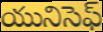
యునిసెఫ్